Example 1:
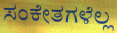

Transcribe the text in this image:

ಸಂಕೇತಗಳೆಲ್ಲ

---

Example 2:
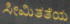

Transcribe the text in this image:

ಸೀಮಿತತೆಯ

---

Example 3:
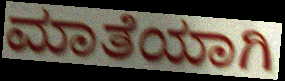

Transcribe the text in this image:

ಮಾತೆಯಾಗಿ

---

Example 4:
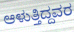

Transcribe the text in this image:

ಆಳುತ್ತಿದ್ದವರ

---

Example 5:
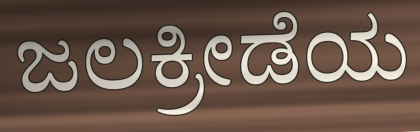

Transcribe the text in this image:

ಜಲಕ್ರೀಡೆಯ